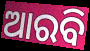
ଆରବି